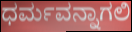
ಧರ್ಮವನ್ನಾಗಲಿ